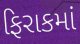
ફિરાકમાં